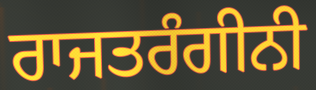
ਰਾਜਤਰੰਗੀਨੀ